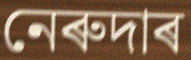
নেৰুদাৰ